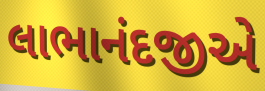
લાભાનંદજીએ